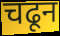
चढून